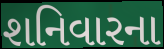
શનિવારના